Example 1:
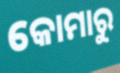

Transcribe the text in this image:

କୋମାରୁ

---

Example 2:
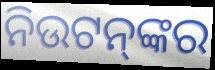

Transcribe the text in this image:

ନିଉଟନ୍‌ଙ୍କର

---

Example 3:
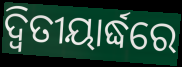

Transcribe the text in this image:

ଦ୍ବିତୀୟାର୍ଦ୍ଧରେ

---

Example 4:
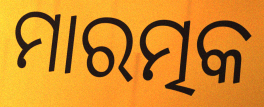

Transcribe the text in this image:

ମାରତ୍ମକ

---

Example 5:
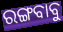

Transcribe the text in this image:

ରଙ୍ଗବାବୁ